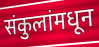
संकुलांमधून